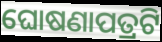
ଘୋଷଣାପତ୍ରଟି